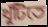
খুঁটিতে